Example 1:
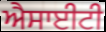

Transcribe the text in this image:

ਐਸਾਈਟੀ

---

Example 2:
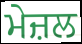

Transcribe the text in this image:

ਮੇਜ਼ਲ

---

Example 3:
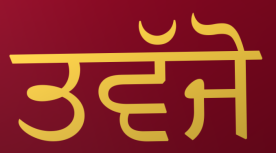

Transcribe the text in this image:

ਤਵੱਜੋ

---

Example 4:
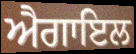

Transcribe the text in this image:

ਐਗਾਇਲ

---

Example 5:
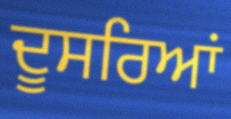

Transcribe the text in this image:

ਦੂਸਰਿਆਂ